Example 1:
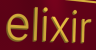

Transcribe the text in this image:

elixir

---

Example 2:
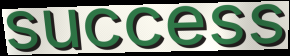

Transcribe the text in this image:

success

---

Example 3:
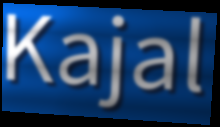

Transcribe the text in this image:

Kajal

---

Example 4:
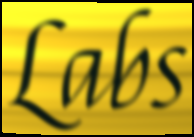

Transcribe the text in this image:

Labs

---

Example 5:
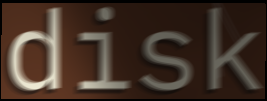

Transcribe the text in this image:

disk